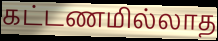
கட்டணமில்லாத